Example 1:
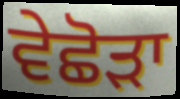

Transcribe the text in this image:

ਵੇਛੋੜਾ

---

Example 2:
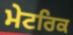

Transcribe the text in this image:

ਮੇਟਰਿਕ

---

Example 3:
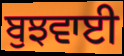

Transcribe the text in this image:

ਬੁਝਵਾਈ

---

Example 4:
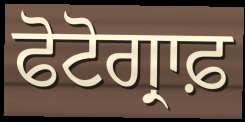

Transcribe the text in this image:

ਫੋਟੋਗ੍ਰਾਫ਼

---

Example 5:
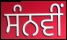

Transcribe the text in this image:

ਸੰਨਵੀਂ